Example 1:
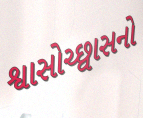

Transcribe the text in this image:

શ્વાસોચ્છ્વાસનો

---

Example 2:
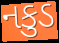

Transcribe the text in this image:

નકુડ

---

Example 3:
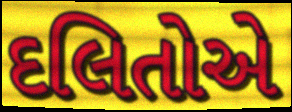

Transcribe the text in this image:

દલિતોએ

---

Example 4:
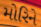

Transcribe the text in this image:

મોરિને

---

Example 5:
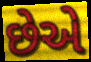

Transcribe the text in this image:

છેએ